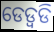
ଡେଡ୍ବଡି